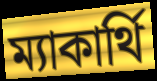
ম্যাকার্থি